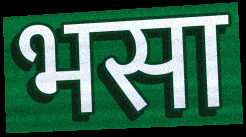
भसा